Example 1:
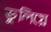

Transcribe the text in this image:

ভুলিয়ে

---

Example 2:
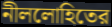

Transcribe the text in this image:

নীললোহিতের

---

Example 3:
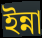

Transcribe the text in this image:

ইন্না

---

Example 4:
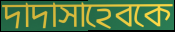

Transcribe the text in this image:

দাদাসাহেবকে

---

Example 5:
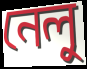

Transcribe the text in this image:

নেলু